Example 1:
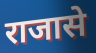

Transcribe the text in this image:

राजासे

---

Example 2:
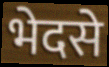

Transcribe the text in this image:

भेदसे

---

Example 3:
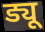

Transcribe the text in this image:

ड्यू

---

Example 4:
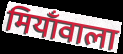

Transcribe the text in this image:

मियाँवाला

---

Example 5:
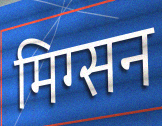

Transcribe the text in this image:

मिग्सन